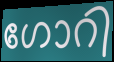
ഗോറി